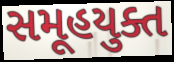
સમૂહયુક્ત